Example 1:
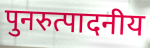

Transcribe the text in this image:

पुनरुत्पादनीय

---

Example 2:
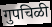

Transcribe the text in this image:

गुपचिळी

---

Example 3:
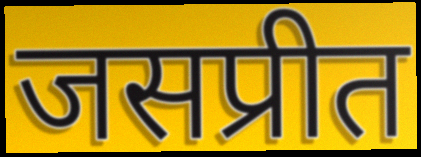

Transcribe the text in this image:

जसप्रीत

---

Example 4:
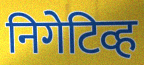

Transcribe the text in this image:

निगेटिव्ह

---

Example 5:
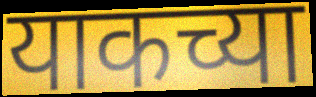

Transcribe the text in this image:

याकच्या